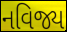
નવિજ્ય